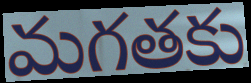
మగతకు